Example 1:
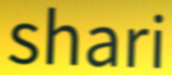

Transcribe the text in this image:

shari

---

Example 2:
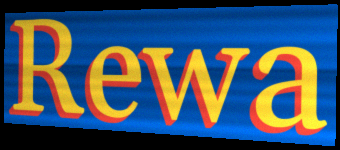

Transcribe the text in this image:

Rewa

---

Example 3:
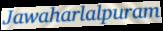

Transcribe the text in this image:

Jawaharlalpuram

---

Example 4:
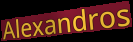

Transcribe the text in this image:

Alexandros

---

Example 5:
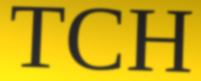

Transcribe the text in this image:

TCH